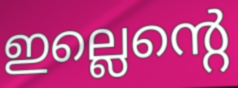
ഇല്ലെന്റെ